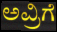
ಅವ್ರಿಗೆ